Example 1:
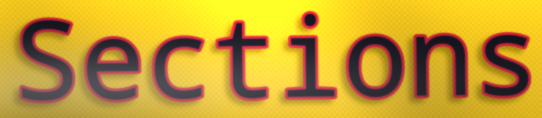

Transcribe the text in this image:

Sections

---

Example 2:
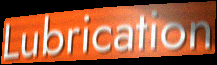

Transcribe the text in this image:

Lubrication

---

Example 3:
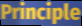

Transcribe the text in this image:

Principle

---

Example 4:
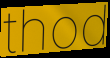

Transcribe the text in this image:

thod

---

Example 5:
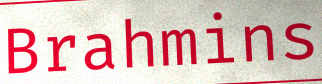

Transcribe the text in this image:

Brahmins